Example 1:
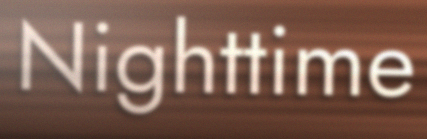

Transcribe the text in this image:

Nighttime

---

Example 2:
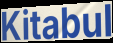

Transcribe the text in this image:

Kitabul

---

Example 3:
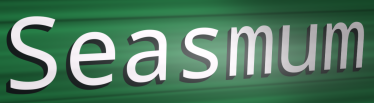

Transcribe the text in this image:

Seasmum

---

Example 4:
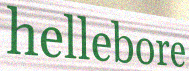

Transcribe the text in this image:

hellebore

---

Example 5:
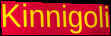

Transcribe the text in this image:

Kinnigoli